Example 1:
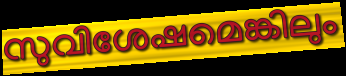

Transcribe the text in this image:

സുവിശേഷമെങ്കിലും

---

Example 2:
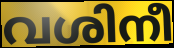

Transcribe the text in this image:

വശിനീ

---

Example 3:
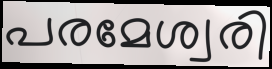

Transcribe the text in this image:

പരമേശ്വരി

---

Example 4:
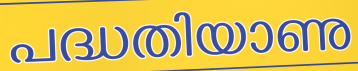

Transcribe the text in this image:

പദ്ധതിയാണു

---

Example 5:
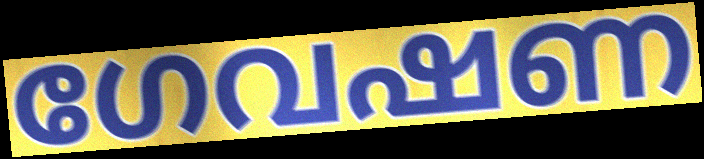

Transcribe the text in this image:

ഗേവഷണ